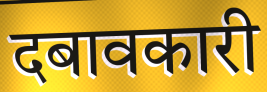
दबावकारी